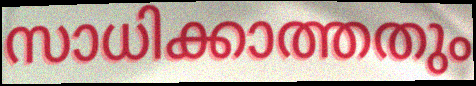
സാധിക്കാത്തതും